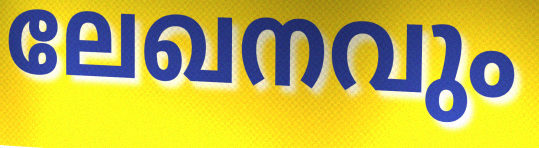
ലേഖനവും